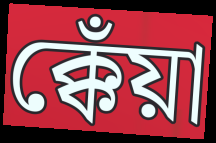
ক্কেঁয়া